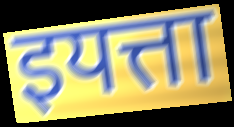
इयत्ता